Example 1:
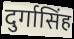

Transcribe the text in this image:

दुर्गासिंह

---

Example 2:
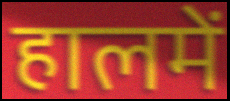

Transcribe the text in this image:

हालमें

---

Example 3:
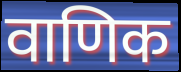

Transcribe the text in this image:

वाणिक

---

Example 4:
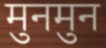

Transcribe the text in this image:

मुनमुन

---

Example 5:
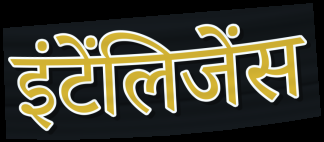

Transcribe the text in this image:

इंटेंलिजेंस